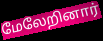
மேலேறினார்